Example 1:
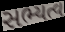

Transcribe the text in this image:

સભ્યત્વ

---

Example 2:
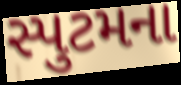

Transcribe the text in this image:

સ્પુટમના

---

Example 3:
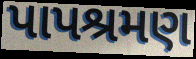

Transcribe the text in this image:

પાપશ્રમણ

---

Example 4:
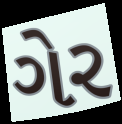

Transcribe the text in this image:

ગેર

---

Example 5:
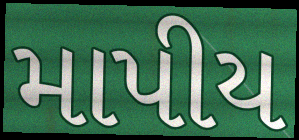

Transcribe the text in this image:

માપીય